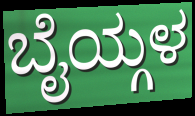
ಬೈಯ್ಗಳ